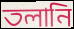
তলানি